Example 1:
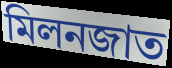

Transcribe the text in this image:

মিলনজাত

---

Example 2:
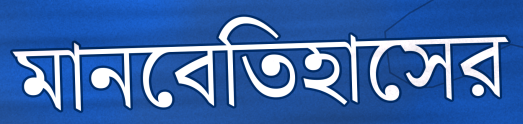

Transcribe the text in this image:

মানবেতিহাসের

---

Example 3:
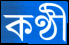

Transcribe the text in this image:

কণ্ঠী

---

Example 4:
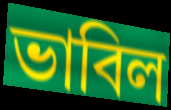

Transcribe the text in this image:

ভাবিল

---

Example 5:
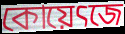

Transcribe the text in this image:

কোয়েৎজে